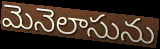
మెనెలాసును